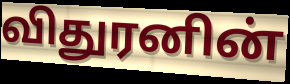
விதுரனின்